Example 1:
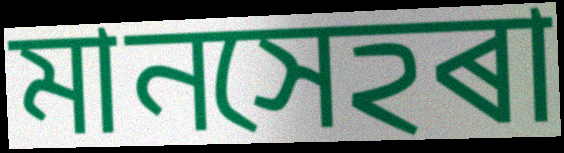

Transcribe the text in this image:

মানসেহৰা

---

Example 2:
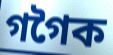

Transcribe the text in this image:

গগৈক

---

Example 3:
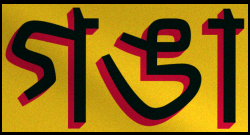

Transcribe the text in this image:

গঙা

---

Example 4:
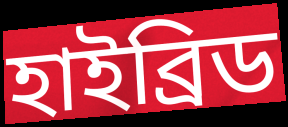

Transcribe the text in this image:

হাইব্ৰিড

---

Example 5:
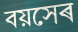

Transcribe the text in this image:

বয়সেৰ